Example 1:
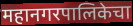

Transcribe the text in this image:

महानगरपालिकेचा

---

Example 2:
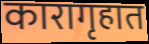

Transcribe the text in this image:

कारागृहात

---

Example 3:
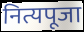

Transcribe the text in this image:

नित्यपूजा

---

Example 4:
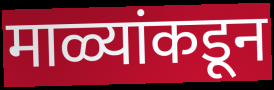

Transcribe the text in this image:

माळ्यांकडून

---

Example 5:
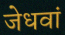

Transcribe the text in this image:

जेधवां